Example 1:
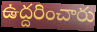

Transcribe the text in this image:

ఉద్దరించారు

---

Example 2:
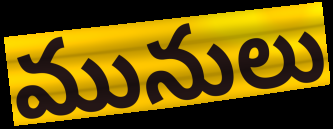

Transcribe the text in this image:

మునులు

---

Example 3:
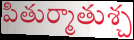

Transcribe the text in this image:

పితుర్మాతుశ్చ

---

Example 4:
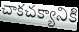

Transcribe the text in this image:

చాకచక్యానికి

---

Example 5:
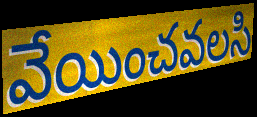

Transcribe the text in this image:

వేయించవలసి